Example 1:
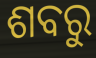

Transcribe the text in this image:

ଶବରୁ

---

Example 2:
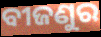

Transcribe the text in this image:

ବୀଜଣୁର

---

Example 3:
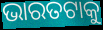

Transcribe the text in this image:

ଭାରତଟାକୁ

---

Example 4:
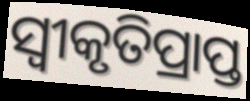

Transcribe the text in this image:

ସ୍ୱୀକୃତିପ୍ରାପ୍ତ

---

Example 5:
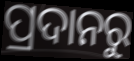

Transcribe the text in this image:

ପ୍ରଦାନରୁ